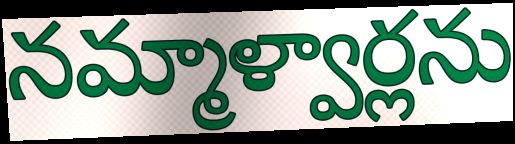
నమ్మాళ్వార్లను